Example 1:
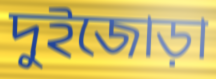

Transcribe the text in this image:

দুইজোড়া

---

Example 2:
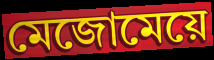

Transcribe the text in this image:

মেজোমেয়ে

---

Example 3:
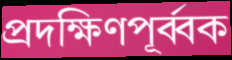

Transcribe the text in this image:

প্রদক্ষিণপূর্ব্বক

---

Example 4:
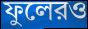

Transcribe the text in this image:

ফুলেরও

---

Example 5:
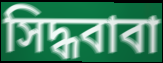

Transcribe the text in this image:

সিদ্ধবাবা